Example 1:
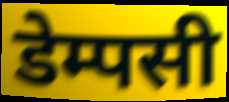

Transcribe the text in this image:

डेम्पसी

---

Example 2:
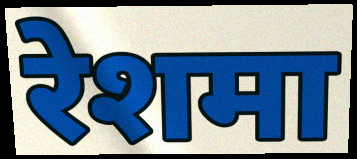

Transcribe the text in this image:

रेशमा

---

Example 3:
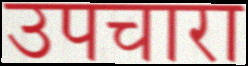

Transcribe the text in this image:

उपचारा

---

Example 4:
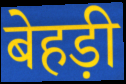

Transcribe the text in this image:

बेहड़ी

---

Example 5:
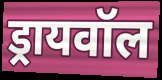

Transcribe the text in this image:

ड्रायवॉल